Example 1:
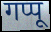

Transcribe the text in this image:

गप्पू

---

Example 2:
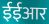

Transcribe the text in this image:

ईईआर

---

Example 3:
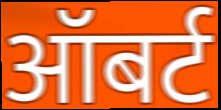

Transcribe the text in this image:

ऑबर्ट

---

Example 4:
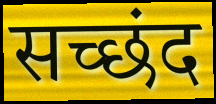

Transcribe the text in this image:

सच्छंद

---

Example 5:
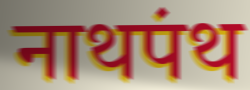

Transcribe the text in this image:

नाथपंथ